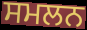
ਸਮਲਨ